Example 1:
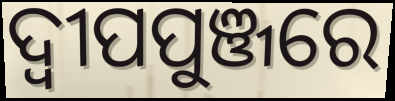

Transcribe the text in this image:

ଦ୍ବୀପପୁଞ୍ଜରେ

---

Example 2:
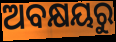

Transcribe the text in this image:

ଅବକ୍ଷୟରୁ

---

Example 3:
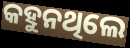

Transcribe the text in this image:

କହୁନଥିଲେ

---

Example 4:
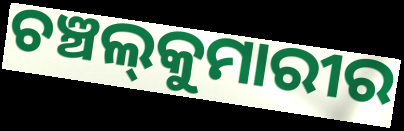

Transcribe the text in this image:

ଚଞ୍ଚଲ୍‍କୁମାରୀର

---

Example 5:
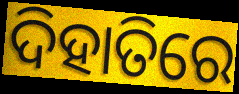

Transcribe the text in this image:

ଦିହାତିରେ